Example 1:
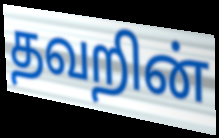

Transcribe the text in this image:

தவறின்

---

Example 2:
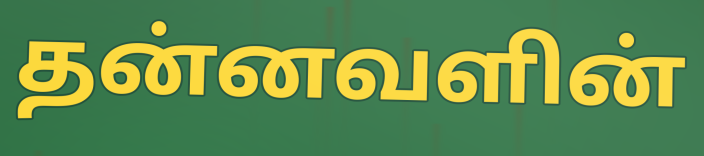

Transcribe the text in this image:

தன்னவளின்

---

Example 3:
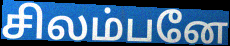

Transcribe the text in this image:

சிலம்பனே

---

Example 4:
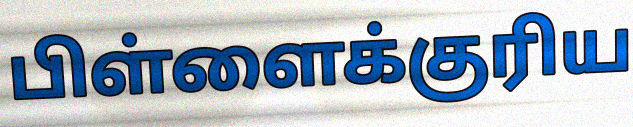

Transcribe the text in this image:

பிள்ளைக்குரிய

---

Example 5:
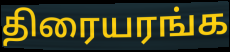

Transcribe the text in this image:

திரையரங்க